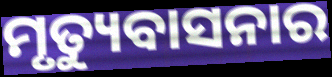
ମୃତ୍ୟୁବାସନାର